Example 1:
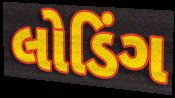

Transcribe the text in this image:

લોડિંગ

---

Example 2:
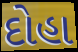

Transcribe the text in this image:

દોહા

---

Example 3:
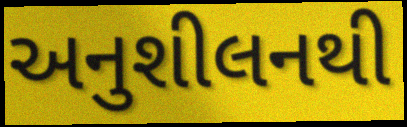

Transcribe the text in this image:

અનુશીલનથી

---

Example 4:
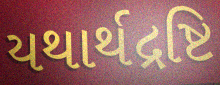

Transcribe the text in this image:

યથાર્થદ્રષ્ટિ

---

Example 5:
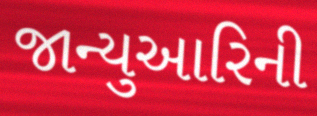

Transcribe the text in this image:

જાન્યુઆરિની